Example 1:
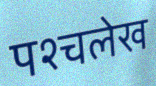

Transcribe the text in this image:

पश्चलेख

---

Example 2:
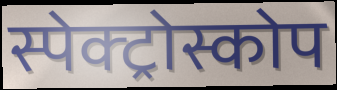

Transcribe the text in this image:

स्पेक्ट्रोस्कोप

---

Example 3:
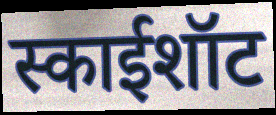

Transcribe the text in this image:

स्काईशॉट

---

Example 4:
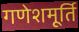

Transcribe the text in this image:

गणेशमूर्ति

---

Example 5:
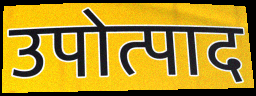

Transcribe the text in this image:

उपोत्पाद